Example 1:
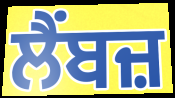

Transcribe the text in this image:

ਲੈਂਬਜ਼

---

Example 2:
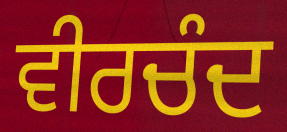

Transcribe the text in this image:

ਵੀਰਚੰਦ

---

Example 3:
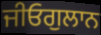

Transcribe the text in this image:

ਜੀਓਗੁਲਾਨ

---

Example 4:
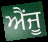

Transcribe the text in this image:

ਐਂਜੂ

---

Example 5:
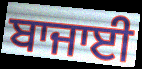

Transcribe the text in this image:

ਬਾਜਾਈ